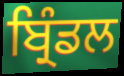
ਬ੍ਰਿੰਡਲ